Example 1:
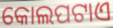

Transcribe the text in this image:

କୋଲପଟାଏ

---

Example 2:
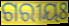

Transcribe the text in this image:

ଗରୀୟଃ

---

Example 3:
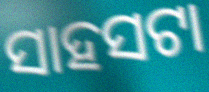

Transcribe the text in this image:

ସାହସଟା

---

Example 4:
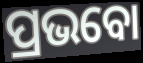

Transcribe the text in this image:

ପ୍ରଭବୋ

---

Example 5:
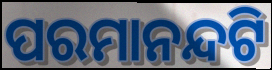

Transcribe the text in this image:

ପରମାନନ୍ଦଟି